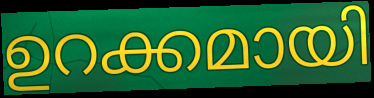
ഉറക്കമായി